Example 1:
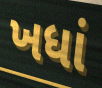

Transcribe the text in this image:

ખધાં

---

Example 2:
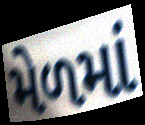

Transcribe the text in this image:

મેળમાં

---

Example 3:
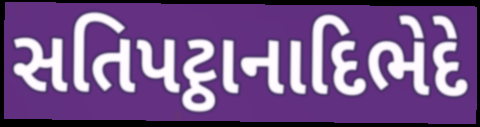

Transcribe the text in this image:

સતિપટ્ઠાનાદિભેદે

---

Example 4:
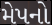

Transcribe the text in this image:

મેપનો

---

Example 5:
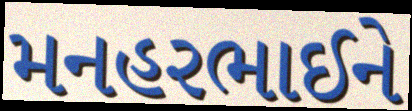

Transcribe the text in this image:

મનહરભાઈને